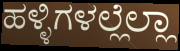
ಹಳ್ಳಿಗಳಲ್ಲೆಲ್ಲಾ